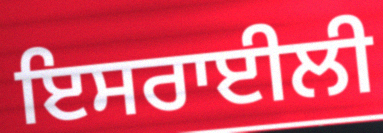
ਇਸਰਾਈਲੀ